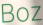
Boz